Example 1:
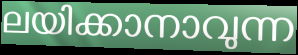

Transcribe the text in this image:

ലയിക്കാനാവുന്ന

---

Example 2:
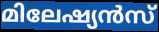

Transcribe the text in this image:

മിലേഷ്യൻസ്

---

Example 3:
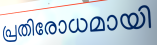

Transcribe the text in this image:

പ്രതിരോധമായി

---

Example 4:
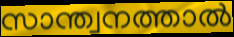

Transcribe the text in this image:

സാന്ത്വനത്താൽ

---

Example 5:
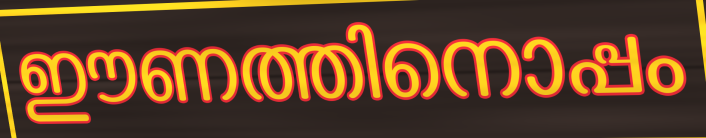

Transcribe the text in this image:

ഈണത്തിനൊപ്പം